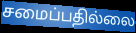
சமைப்பதில்லை